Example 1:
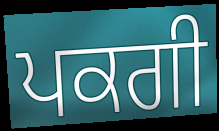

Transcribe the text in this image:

ਪਕਗੀ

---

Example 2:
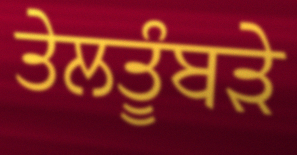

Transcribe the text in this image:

ਤੇਲਤੂੰਬੜੇ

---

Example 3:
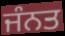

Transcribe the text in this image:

ਜੰਨਤ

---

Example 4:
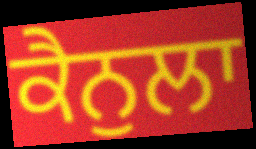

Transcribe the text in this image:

ਕੈਨੁਲਾ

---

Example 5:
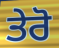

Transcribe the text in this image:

ਤੇਰੋ